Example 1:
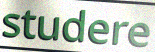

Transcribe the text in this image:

studere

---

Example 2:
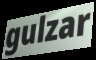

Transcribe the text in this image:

gulzar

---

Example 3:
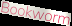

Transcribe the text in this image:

Bookworm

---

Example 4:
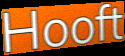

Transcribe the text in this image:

Hooft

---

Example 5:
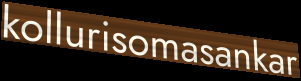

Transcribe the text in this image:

kollurisomasankar